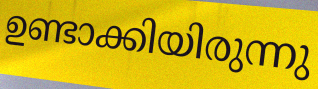
ഉണ്ടാക്കിയിരുന്നു